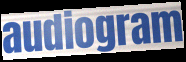
audiogram